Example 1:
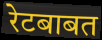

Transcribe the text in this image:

रेटबाबत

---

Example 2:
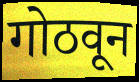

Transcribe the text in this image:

गोठवून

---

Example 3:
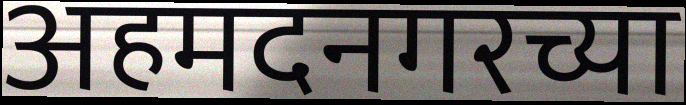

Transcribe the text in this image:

अहमदनगरच्या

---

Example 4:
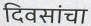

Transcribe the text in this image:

दिवसांचा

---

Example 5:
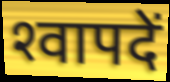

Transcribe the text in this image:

श्वापदें